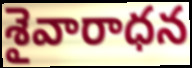
శైవారాధన